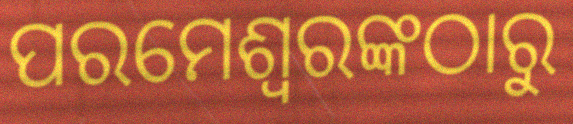
ପରମେଶ୍ଵରଙ୍କଠାରୁ